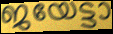
ജയേട്ടാ